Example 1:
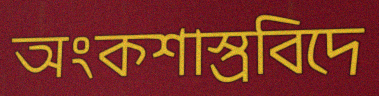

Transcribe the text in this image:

অংকশাস্ত্ৰবিদে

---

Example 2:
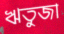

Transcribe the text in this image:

ঋতুজা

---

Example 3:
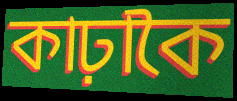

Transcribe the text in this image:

কাঢ়াকৈ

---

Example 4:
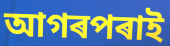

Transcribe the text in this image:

আগৰপৰাই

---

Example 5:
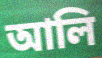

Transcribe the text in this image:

আলি